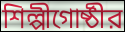
শিল্পীগোষ্ঠীর